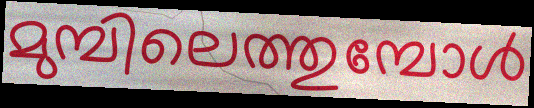
മുമ്പിലെത്തുമ്പോൾ